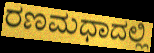
ರಣಮಧಾದಲ್ಲಿ